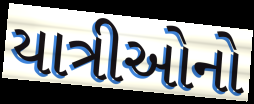
યાત્રીઓનો